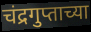
चंद्रगुप्ताच्या